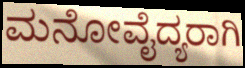
ಮನೋವೈದ್ಯರಾಗಿ